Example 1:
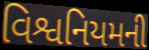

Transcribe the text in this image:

વિશ્વનિયમની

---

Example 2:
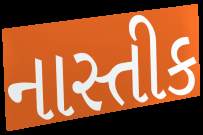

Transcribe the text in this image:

નાસ્તીક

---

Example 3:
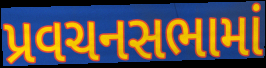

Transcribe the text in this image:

પ્રવચનસભામાં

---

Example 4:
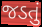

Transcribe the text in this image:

જડતું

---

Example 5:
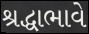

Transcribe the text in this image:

શ્રદ્ધાભાવે